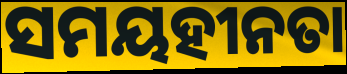
ସମୟହୀନତା